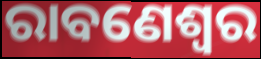
ରାବଣେଶ୍ୱର